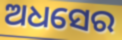
ଅଧସେର